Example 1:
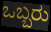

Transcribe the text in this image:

ಒಬ್ಬರು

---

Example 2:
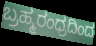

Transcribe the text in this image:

ಬ್ರಹ್ಮರಂಧ್ರದಿಂದ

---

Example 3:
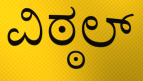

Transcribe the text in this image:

ವಿಠ್ಠಲ್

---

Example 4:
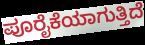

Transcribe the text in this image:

ಪೂರೈಕೆಯಾಗುತ್ತಿದೆ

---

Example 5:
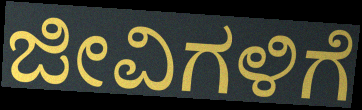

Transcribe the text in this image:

ಜೀವಿಗಳಿಗೆ